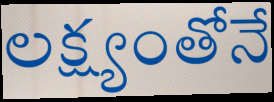
లక్ష్యంతోనే